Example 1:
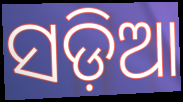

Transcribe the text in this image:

ସଡ଼ିଆ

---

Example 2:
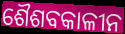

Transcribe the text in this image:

ଶୈଶବକାଳୀନ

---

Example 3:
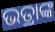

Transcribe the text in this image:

ଭତ୍ରାଙ୍କ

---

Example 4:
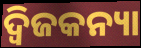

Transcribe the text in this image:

ଦ୍ୱିଜକନ୍ୟା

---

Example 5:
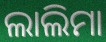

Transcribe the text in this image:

ଲାଲିମା